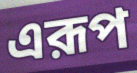
এরূপ